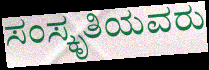
ಸಂಸ್ಕೃತಿಯವರು